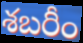
శబరీం